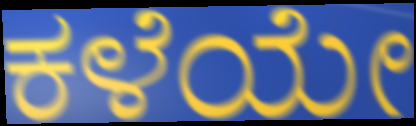
ಕಳೆಯೇ